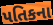
પતિકના